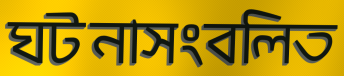
ঘটনাসংবলিত